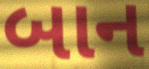
બાન